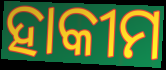
ହାକୀମ